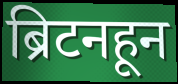
ब्रिटनहून